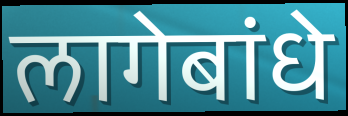
लागेबांधे